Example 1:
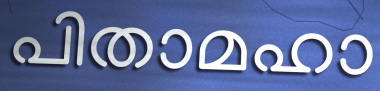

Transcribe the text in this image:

പിതാമഹാ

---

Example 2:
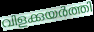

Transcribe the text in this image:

വിളക്കുയർത്തി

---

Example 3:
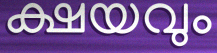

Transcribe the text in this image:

ക്ഷയവും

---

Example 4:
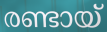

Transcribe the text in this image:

രണ്ടായ്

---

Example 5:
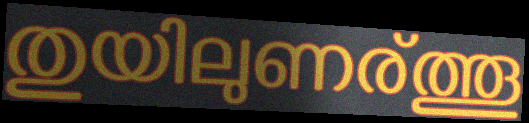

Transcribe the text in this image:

തുയിലുണര്ത്തൂ